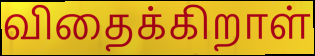
விதைக்கிறாள்